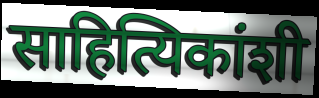
साहित्यिकांशी